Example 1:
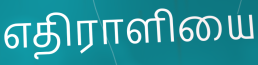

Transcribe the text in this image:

எதிராளியை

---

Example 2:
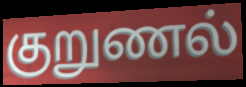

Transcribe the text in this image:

குறுணல்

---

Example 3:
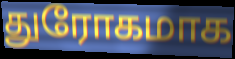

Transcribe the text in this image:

துரோகமாக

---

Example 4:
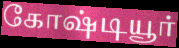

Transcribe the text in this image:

கோஷ்டியூர்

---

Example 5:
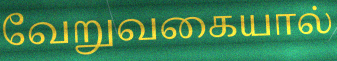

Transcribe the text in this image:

வேறுவகையால்